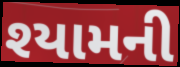
શ્યામની